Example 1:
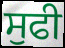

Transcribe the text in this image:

ਸੁਫੀ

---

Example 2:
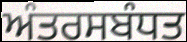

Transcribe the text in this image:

ਅੰਤਰਸਬੰਧਤ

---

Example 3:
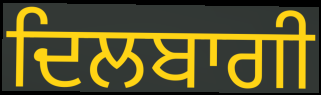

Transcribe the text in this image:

ਦਿਲਬਾਗੀ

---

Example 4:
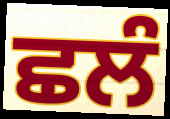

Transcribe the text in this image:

ਛਲੰ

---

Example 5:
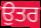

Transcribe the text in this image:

ਉਤਰ